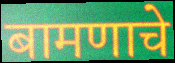
बामणाचे